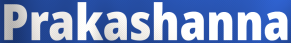
Prakashanna